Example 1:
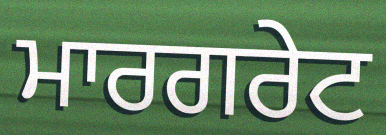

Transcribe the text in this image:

ਮਾਰਗਰੇਟ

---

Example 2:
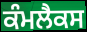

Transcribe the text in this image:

ਕੰਮਲੈਕਸ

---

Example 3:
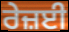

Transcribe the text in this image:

ਰੇਜ਼ਈ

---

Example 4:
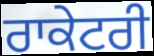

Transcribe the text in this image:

ਰਾਕੇਟਰੀ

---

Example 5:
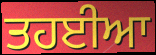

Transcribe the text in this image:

ਤਹਈਆ